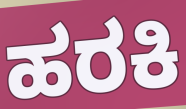
ಹರಕಿ